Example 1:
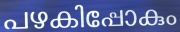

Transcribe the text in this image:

പഴകിപ്പോകും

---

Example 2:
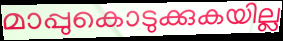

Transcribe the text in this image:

മാപ്പുകൊടുക്കുകയില്ല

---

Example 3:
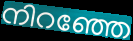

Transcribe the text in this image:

നിറഞ്ഞേ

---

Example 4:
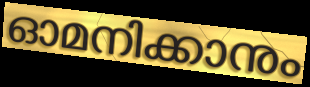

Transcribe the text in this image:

ഓമനിക്കാനും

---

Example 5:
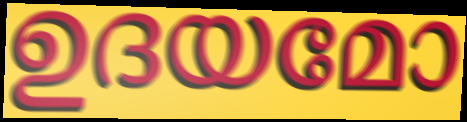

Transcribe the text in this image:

ഉദയമോ